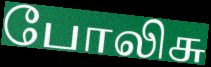
போலிசு